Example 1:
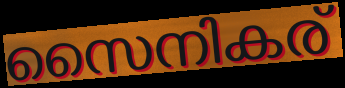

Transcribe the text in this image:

സൈനികര്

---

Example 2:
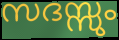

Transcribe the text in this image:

സദസ്സും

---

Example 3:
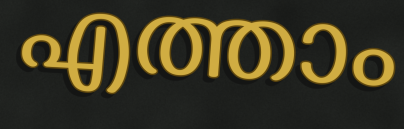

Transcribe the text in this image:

എത്താം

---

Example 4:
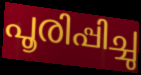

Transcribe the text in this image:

പൂരിപ്പിച്ചു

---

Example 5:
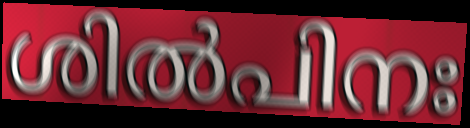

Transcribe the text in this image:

ശിൽപിനഃ